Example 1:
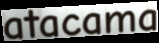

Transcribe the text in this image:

atacama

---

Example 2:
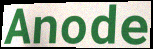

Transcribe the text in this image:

Anode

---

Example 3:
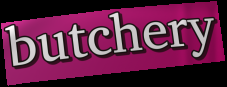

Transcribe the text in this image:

butchery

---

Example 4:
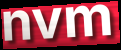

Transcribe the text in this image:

nvm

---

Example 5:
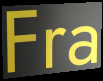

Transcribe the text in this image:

Fra